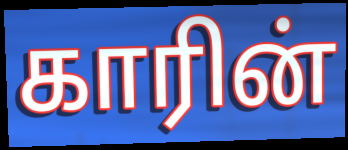
காரின்